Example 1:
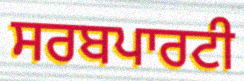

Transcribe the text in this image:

ਸਰਬਪਾਰਟੀ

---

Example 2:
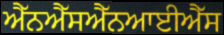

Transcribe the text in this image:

ਐੱਨਐੱਸਐੱਨਆਈਐੱਸ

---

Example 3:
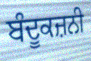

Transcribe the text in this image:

ਬੰਦੂਕਜ਼ਨੀ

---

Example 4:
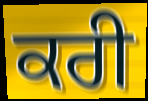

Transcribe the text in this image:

ਕਰੀ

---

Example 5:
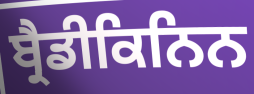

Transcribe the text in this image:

ਬ੍ਰੈਡੀਕਿਨਿਨ